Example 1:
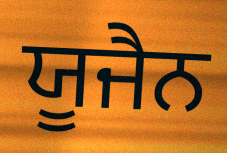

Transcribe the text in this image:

ਯੂਜੈਨ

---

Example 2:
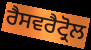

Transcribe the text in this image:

ਰੈਸਵਰੈਟ੍ਰੋਲ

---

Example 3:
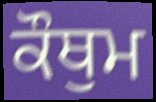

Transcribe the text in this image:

ਕੌਥੁਮ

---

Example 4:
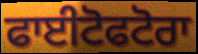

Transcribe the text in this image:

ਫਾਈਟੋਫਟੋਰਾ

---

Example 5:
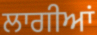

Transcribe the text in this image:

ਲਾਗੀਆਂ